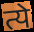
त्ये